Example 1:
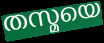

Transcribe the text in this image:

തസ്മയെ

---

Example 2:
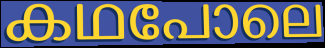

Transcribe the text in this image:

കഥപോലെ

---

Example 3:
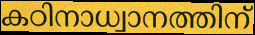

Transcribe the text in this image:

കഠിനാധ്വാനത്തിന്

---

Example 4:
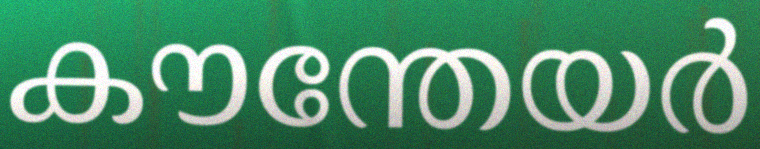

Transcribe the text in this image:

കൗന്തേയർ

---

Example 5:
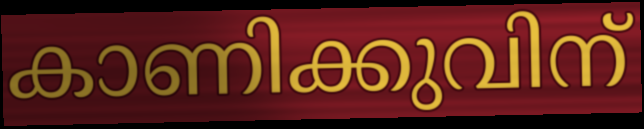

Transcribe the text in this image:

കാണിക്കുവിന്